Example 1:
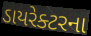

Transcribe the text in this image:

ડાયરેક્ટરના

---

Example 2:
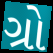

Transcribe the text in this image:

ગ્રો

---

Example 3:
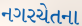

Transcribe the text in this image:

નગરચેતના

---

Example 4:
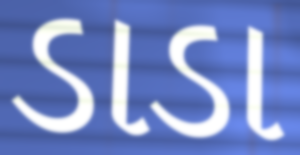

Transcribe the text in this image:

ડાડા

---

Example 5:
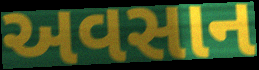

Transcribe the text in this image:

અવસાન